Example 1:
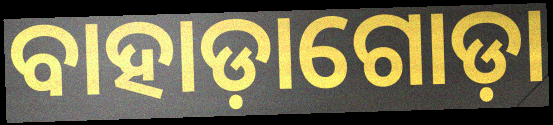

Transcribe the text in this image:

ବାହାଡ଼ାଗୋଡ଼ା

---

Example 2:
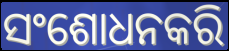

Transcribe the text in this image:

ସଂଶୋଧନକରି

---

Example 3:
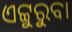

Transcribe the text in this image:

ଏଟ୍ଟୁରୁବା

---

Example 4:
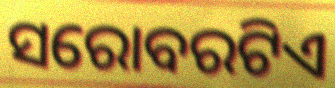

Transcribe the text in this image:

ସରୋବରଟିଏ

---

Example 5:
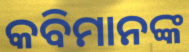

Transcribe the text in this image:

କବିମାନଙ୍କ